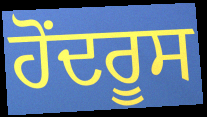
ਹੋਂਦਰੂਸ